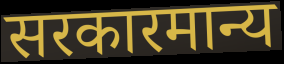
सरकारमान्य